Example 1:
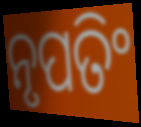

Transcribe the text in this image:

ନୃପତିଂ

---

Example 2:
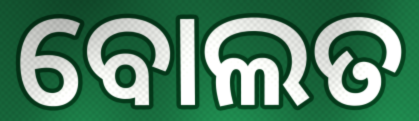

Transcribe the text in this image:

ବୋଲତ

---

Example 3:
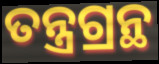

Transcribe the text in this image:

ତନ୍ତ୍ରଗ୍ରନ୍ଥ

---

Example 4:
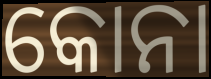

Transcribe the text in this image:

କୋନା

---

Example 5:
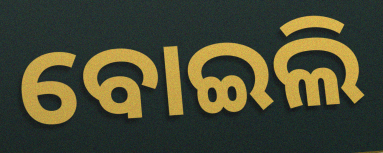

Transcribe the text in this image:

ବୋଇଲି